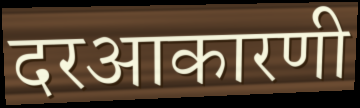
दरआकारणी